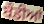
ਬੌਡੀਆਂ